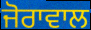
ਜੋਰਾਵਾਲ